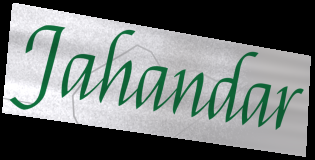
Jahandar